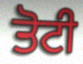
ਤੋਟੀ